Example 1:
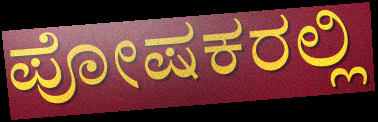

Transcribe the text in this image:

ಪೋಷಕರಲ್ಲಿ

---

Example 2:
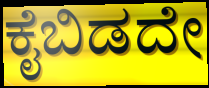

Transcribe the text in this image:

ಕೈಬಿಡದೇ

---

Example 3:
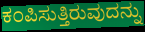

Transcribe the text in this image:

ಕಂಪಿಸುತ್ತಿರುವುದನ್ನು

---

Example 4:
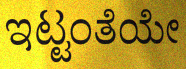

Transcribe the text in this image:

ಇಟ್ಟಂತೆಯೇ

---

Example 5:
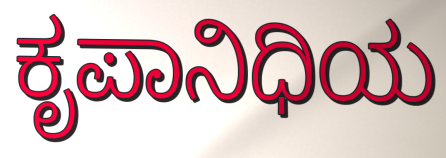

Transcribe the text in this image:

ಕೃಪಾನಿಧಿಯ